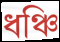
ধঞ্চি